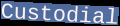
Custodial